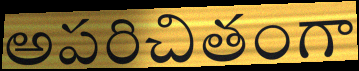
అపరిచితంగా